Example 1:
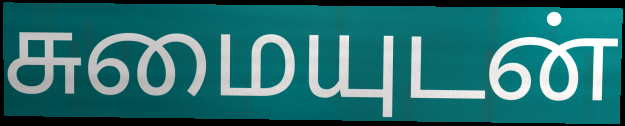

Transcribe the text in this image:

சுமையுடன்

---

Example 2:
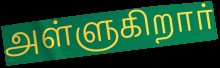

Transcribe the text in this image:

அள்ளுகிறார்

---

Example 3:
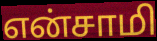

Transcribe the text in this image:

என்சாமி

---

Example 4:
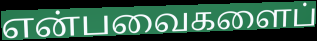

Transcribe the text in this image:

என்பவைகளைப்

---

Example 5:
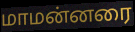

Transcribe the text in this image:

மாமன்னரை